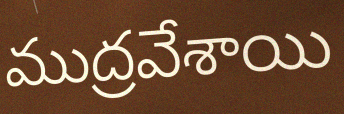
ముద్రవేశాయి